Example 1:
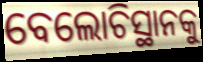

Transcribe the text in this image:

ବେଲୋଚିସ୍ଥାନକୁ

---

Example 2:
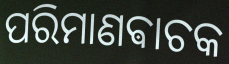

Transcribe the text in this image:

ପରିମାଣଵାଚକ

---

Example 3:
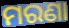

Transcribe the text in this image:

ମରଣା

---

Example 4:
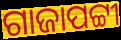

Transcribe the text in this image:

ଗାଜାପଟ୍ଟୀ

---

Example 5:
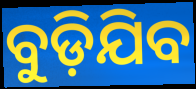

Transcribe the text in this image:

ବୁଡ଼ିଯିବ